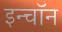
इन्चॉन